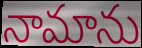
నామాను